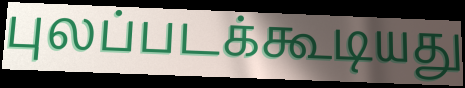
புலப்படக்கூடியது